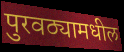
पुरवठ्यामधील